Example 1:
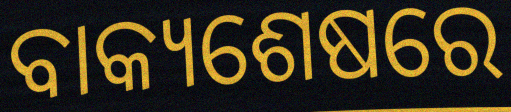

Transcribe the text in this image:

ବାକ୍ୟଶେଷରେ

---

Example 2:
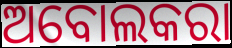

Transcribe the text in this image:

ଅବୋଲକରା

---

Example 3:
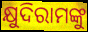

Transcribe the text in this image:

କ୍ଷୁଦିରାମଙ୍କୁ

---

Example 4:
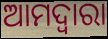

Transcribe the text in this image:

ଆମଦ୍ୱାରା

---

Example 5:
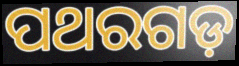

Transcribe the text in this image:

ପଥରଗଡ଼